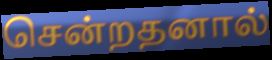
சென்றதனால்